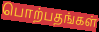
பொற்பதங்கள்